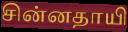
சின்னதாயி